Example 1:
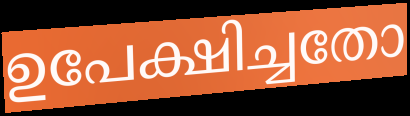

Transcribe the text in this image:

ഉപേക്ഷിച്ചതോ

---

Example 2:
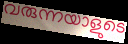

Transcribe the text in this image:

വരുന്നയാളുടെ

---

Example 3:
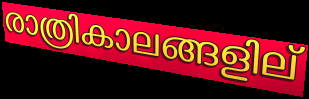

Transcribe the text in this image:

രാത്രികാലങ്ങളില്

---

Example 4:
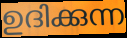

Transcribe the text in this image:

ഉദിക്കുന്ന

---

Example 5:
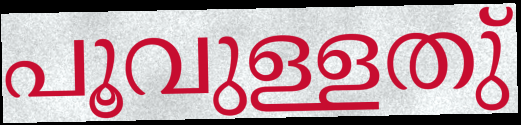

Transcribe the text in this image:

പൂവുള്ളതു്